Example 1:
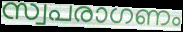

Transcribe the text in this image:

സ്വപരാഗണം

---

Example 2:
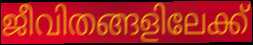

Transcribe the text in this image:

ജീവിതങ്ങളിലേക്ക്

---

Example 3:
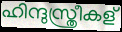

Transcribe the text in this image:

ഹിന്ദുസ്ത്രീകള്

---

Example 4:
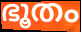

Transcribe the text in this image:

ഭൂതം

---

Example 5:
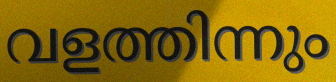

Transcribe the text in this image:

വളത്തിന്നും